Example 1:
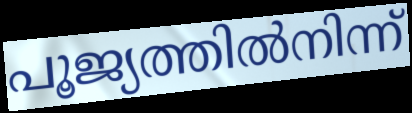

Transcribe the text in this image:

പൂജ്യത്തിൽനിന്ന്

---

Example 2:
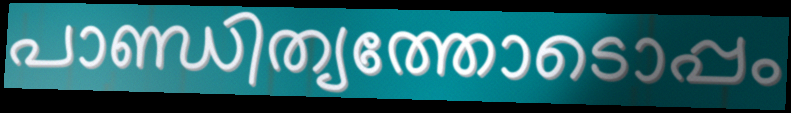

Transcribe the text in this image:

പാണ്ഡിത്യത്തോടൊപ്പം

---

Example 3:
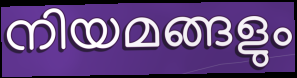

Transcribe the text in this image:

നിയമങ്ങളും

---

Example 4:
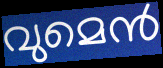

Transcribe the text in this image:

വുമെൻ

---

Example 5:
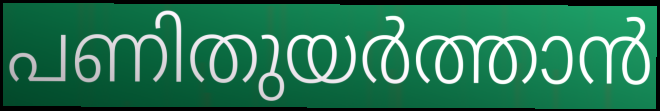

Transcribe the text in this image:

പണിതുയർത്താൻ